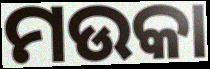
ମଉକା